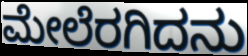
ಮೇಲೆರಗಿದನು